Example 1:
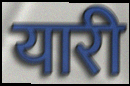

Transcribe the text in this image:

यारी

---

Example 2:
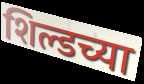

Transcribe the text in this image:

शिल्डच्या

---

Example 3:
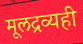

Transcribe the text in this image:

मूलद्रव्यही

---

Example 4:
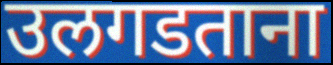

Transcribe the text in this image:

उलगडताना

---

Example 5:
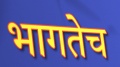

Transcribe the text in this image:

भागतेच